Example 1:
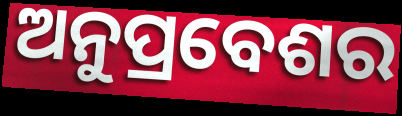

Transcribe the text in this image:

ଅନୁପ୍ରବେଶର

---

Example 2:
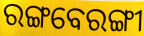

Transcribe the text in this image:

ରଙ୍ଗବେରଙ୍ଗୀ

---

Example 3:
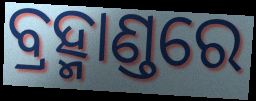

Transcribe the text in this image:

ବ୍ରହ୍ମାଣ୍ଡରେ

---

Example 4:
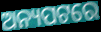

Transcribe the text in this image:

ଅନ୍ୟପଟରେ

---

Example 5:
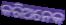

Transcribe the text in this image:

କରିଅନେକ